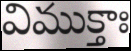
విముక్తాః